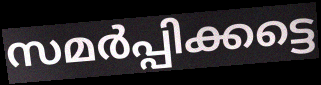
സമർപ്പിക്കട്ടെ